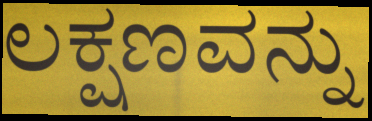
ಲಕ್ಷಣವನ್ನು